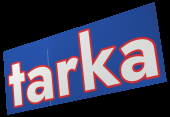
tarka